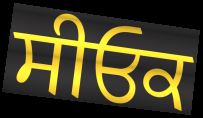
ਸੀਓਕ